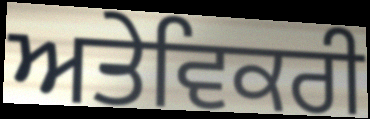
ਅਤੇਵਿਕਰੀ